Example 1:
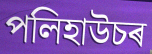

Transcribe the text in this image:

পলিহাউচৰ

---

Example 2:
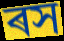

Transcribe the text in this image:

ৰস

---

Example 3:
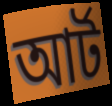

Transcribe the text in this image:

আৰ্ট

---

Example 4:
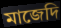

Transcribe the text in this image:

মাজেদি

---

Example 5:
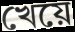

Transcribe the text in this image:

খেয়ে